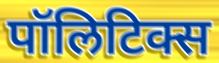
पॉलिटिक्स